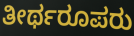
ತೀರ್ಥರೂಪರು